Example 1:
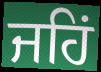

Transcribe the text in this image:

ਜਹਿਂ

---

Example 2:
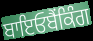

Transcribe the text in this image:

ਬਾਇਓਬੈਂਕਿੰਗ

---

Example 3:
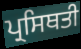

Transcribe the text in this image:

ਪ੍ਰਸਿਥਤੀ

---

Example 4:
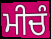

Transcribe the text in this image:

ਮੀਚੰ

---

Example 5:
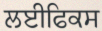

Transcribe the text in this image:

ਲਈਫਿਕਸ